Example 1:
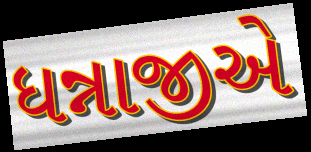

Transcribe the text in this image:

ધન્નાજીએ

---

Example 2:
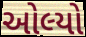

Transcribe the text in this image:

ઓલ્યો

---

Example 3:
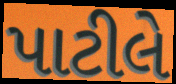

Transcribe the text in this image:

પાટીલે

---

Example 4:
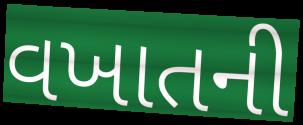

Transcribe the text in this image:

વખાતની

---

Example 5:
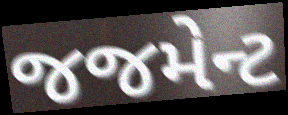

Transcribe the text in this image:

જજમેન્ટ